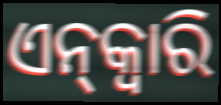
ଏନ୍‌କ୍ୱାରି